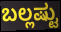
ಬಲ್ಲಷ್ಟು